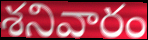
శనివారం